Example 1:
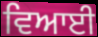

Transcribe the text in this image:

ਵਿਆਈ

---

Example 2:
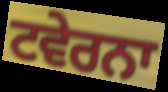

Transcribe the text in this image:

ਟਵੇਰਨਾ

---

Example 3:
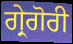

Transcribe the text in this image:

ਗ੍ਰੇਗੋਰੀ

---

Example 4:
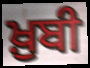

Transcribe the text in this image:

ਖ਼ੁਬੀ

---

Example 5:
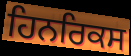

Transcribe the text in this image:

ਹਿਨਰਿਕਸ